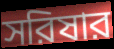
সরিষার